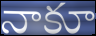
నాకూ